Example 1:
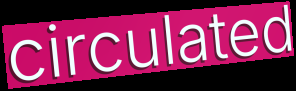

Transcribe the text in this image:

circulated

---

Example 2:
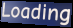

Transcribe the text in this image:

Loading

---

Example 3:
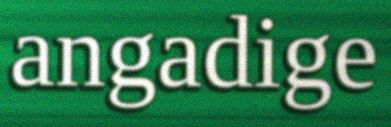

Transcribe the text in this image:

angadige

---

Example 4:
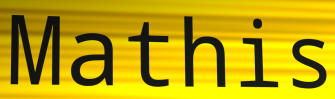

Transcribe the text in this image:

Mathis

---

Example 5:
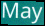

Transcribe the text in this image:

May